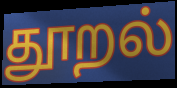
தூறல்